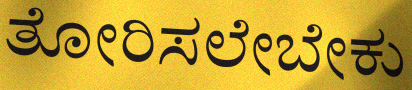
ತೋರಿಸಲೇಬೇಕು